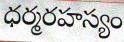
ధర్మరహస్యం